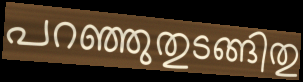
പറഞ്ഞുതുടങ്ങിതു